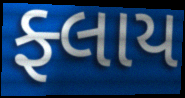
ફ્લાય